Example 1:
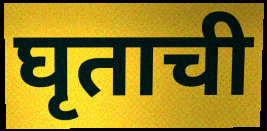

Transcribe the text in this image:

घृताची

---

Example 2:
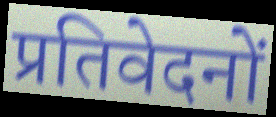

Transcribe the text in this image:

प्रतिवेदनों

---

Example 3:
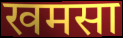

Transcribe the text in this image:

खमसा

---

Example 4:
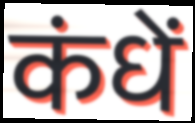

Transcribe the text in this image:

कंधें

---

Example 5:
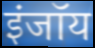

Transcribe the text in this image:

इंजॉय